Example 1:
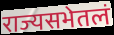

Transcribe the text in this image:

राज्यसभेतलं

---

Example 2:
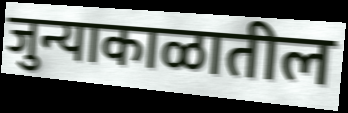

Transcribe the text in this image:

जुन्याकाळातील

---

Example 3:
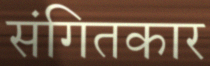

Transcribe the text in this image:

संगितकार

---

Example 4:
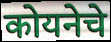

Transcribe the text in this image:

कोयनेचे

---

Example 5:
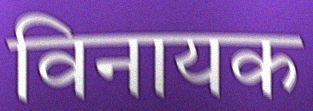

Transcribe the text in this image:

विनायक